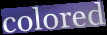
colored